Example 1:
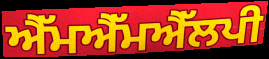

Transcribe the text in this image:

ਐੱਮਐੱਮਐੱਲਪੀ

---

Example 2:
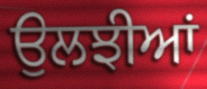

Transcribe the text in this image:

ਉਲਝੀਆਂ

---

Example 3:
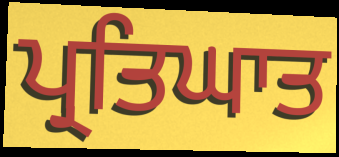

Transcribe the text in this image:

ਪ੍ਰਤਿਘਾਤ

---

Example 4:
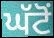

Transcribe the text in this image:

ਘੱਟੋਂ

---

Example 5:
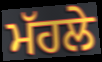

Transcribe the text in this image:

ਮੱਹਲੇ